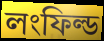
লংফিল্ড